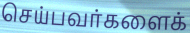
செய்பவர்களைக்